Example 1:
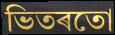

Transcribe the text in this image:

ভিতৰতো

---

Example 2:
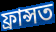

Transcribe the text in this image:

ফ্ৰান্সত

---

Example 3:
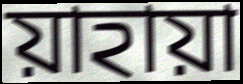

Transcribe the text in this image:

য়াহায়া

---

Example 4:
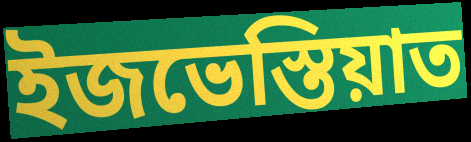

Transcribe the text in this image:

ইজভেস্তিয়াত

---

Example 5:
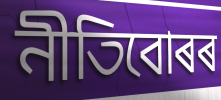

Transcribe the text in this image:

নীতিবোৰৰ